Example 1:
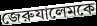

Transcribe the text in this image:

জেরুযালেমকে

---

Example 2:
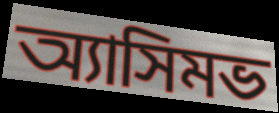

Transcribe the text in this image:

অ্যাসিমভ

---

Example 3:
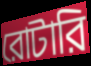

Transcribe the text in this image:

রোটারি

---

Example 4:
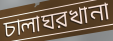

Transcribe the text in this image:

চালাঘরখানা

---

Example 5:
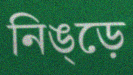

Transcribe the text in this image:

নিঙ্ড়ে